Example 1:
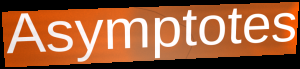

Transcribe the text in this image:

Asymptotes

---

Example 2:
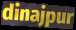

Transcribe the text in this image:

dinajpur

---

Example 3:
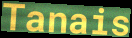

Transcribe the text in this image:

Tanais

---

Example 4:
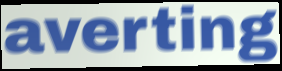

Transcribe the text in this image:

averting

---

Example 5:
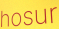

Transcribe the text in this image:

hosur